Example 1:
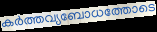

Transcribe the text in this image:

കർത്തവ്യബോധത്തോടെ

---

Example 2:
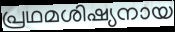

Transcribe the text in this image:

പ്രഥമശിഷ്യനായ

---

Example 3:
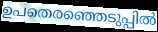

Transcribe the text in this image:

ഉപതെരഞ്ഞെടുപ്പിൽ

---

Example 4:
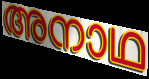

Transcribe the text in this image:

അനാഥ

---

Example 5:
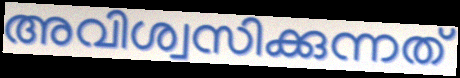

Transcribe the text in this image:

അവിശ്വസിക്കുന്നത്